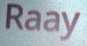
Raay